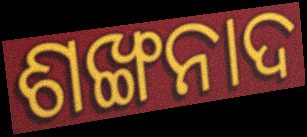
ଶଙ୍ଖନାଦ